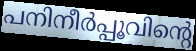
പനിനീർപ്പൂവിന്റെ